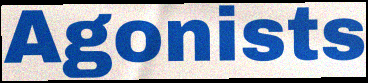
Agonists